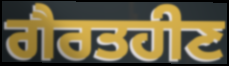
ਗੈਰਤਹੀਣ